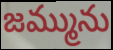
జమ్మును